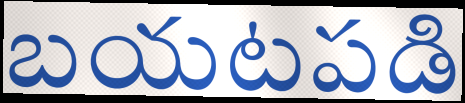
బయటపడి